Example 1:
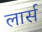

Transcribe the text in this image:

लार्स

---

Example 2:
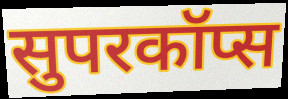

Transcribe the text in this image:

सुपरकॉप्स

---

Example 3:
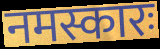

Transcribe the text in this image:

नमस्कारः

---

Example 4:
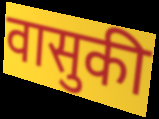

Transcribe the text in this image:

वासुकी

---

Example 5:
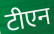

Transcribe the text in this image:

टीएन